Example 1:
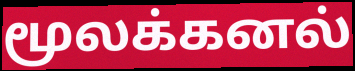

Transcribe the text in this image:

மூலக்கனல்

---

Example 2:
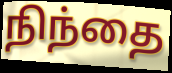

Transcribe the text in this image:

நிந்தை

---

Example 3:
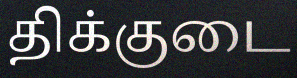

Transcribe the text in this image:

திக்குடை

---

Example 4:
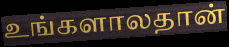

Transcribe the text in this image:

உங்களாலதான்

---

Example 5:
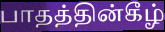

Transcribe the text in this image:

பாதத்தின்கீழ்